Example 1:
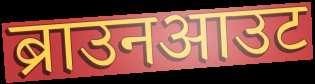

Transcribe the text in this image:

ब्राउनआउट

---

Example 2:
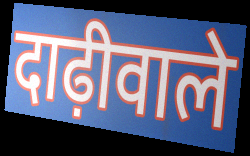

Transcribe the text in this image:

दाढ़ीवाले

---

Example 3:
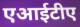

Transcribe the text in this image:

एआईटीए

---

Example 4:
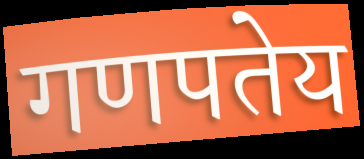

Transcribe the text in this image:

गणपतेय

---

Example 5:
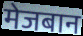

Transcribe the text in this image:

मेजबान